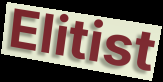
Elitist